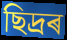
ছিদ্ৰৰ